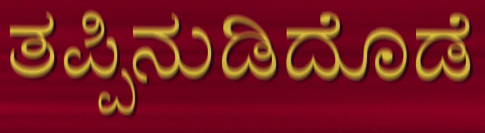
ತಪ್ಪಿನುಡಿದೊಡೆ